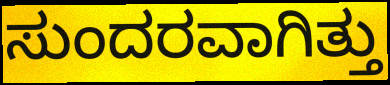
ಸುಂದರವಾಗಿತ್ತು